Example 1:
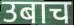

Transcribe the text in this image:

उबाच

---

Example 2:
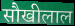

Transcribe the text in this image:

सौखीलाल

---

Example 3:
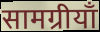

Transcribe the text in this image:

सामग्रीयाँ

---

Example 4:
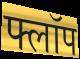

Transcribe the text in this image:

फ्लॉप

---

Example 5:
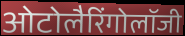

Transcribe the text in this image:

ओटोलैरिंगोलॉजी